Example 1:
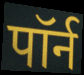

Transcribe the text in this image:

पॉर्न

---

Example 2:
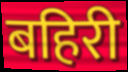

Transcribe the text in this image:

बहिरी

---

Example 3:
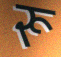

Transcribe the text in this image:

रू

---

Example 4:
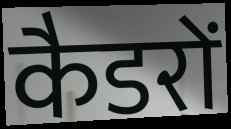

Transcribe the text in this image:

कैडरों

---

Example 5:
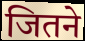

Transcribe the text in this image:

जितने